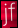
jf